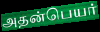
அதன்பெயர்